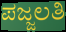
ಪಜ್ಜಲತಿ